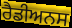
ਰੈਡੀਅਨਸ